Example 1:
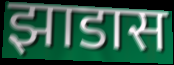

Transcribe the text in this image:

झाडास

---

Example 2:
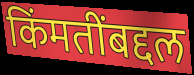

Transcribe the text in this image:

किंमतींबद्दल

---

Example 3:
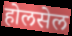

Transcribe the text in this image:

होलसेल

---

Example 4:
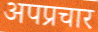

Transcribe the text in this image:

अपप्रचार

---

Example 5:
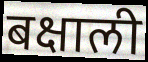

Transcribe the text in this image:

बक्षाली